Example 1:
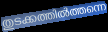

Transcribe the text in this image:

തുടക്കത്തിൽത്തന്നെ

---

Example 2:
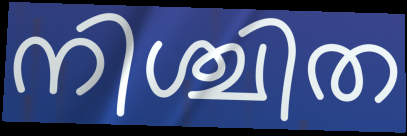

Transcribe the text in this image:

നിശ്ചിത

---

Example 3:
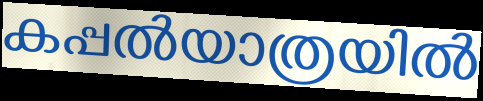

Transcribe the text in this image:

കപ്പൽയാത്രയിൽ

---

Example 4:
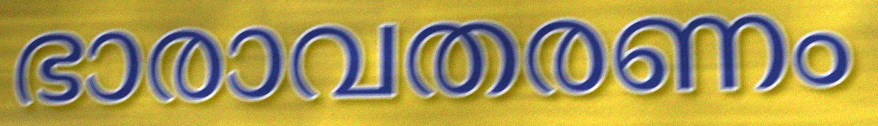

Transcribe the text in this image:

ഭാരാവതരണം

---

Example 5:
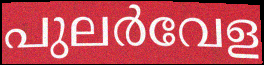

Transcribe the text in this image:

പുലർവേള